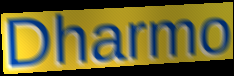
Dharmo